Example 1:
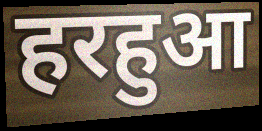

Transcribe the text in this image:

हरहुआ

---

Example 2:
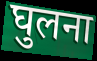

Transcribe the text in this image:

घुलना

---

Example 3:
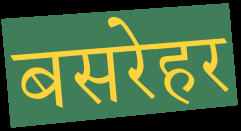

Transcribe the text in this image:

बसरेहर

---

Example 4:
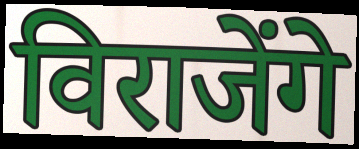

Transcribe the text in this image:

विराजेंगे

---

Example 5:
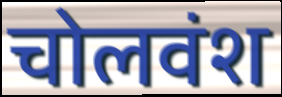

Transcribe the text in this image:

चोलवंश